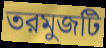
তরমুজটি